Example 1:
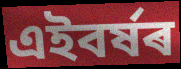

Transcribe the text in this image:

এইবৰ্ষৰ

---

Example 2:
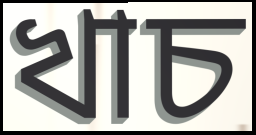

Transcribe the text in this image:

খাচ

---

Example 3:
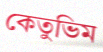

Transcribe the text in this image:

কেতুভিম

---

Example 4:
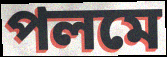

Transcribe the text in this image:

পলমে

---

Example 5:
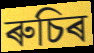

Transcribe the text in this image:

ৰুচিৰ